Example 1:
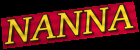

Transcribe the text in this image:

NANNA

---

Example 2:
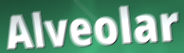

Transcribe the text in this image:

Alveolar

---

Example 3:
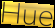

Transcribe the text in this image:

Hue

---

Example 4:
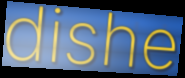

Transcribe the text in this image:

dishe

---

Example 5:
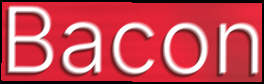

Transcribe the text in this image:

Bacon